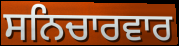
ਸਨਿਚਾਰਵਾਰ